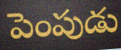
పెంపుడు